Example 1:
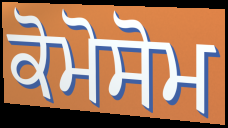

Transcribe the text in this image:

ਕੋਮੋਸੋਮ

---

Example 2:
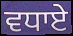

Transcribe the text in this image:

ਵਧਾਏ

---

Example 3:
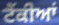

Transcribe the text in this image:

ਟੈਂਕੀਆਂ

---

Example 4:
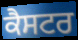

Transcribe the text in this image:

ਕੈਸਟਰ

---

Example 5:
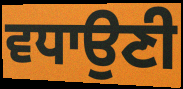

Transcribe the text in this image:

ਵਧਾਉਣੀ